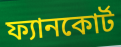
ফ্যানকোর্ট